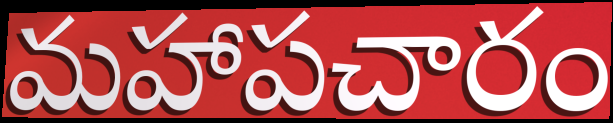
మహాపచారం